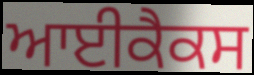
ਆਈਕੈਕਸ